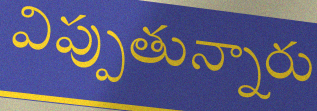
విప్పుతున్నారు